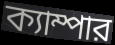
ক্যাম্পার